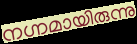
നഗ്നമായിരുന്നു